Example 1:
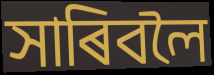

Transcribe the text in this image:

সাৰিবলৈ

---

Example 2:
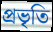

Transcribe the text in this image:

প্ৰভৃতি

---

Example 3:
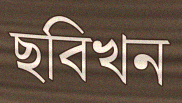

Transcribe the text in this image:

ছবিখন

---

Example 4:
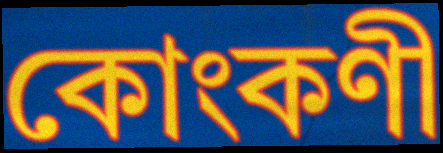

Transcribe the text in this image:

কোংকণী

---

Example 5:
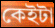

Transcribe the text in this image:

কেইটা